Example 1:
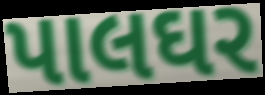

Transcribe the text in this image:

પાલઘર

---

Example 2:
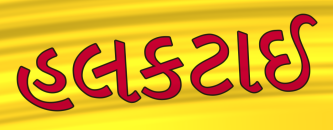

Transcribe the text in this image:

હલકટાઈ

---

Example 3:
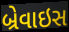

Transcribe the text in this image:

બ્રેવાઇસ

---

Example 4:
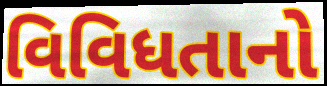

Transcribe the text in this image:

વિવિધતાનો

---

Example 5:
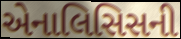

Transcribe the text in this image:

એનાલિસિસની